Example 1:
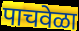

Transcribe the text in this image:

पाचवेळा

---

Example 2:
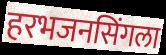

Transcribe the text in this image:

हरभजनसिंगला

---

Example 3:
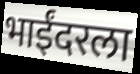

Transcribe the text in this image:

भाईंदरला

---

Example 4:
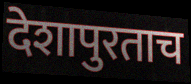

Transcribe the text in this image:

देशापुरताच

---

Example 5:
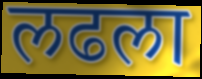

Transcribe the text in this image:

लढला